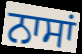
ਨਾਸਾਂ